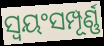
ସ୍ବୟଂସମ୍ପୂର୍ଣ୍ଣ